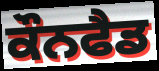
ਕੌਨਫੈਡ